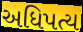
અધિપત્ય